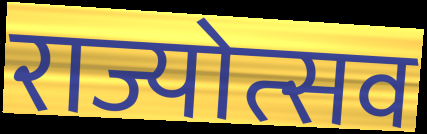
राज्योत्सव